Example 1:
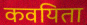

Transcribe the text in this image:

कवयिता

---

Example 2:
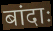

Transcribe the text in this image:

बांदाः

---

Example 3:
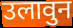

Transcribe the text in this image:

उलावुन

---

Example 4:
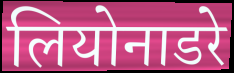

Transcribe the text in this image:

लियोनाडरे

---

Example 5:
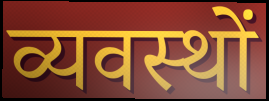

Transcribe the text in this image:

व्यवस्थों